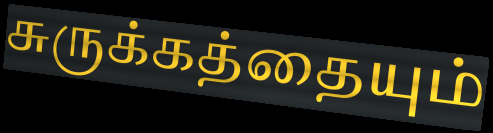
சுருக்கத்தையும்